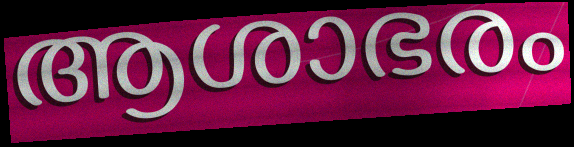
ആശാഭരം